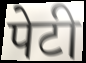
पेटी